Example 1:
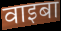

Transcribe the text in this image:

वाइबा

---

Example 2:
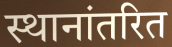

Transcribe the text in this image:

स्थानांतरित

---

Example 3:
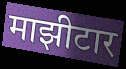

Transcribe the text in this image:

माझीटार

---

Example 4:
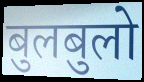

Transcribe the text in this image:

बुलबुलो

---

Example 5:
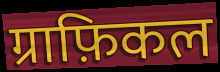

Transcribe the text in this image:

ग्राफ़िकल